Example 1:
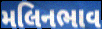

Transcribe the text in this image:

મલિનભાવ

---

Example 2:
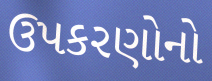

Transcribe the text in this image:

ઉપકરણોનો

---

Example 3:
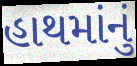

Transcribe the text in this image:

હાથમાંનું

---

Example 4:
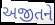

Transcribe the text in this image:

અજીતને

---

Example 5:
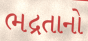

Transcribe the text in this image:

ભદ્રતાનો